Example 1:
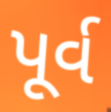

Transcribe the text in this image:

પૂર્વ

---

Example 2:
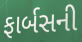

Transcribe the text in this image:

ફાર્બસની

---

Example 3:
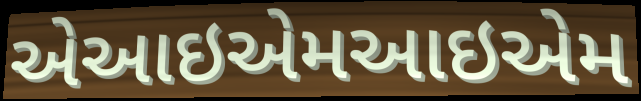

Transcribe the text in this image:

એઆઇએમઆઇએમ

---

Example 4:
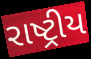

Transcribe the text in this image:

રાષ્ટ્રીય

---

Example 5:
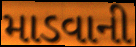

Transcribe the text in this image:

માડવાની